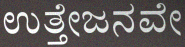
ಉತ್ತೇಜನವೇ